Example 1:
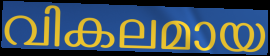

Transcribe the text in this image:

വികലമായ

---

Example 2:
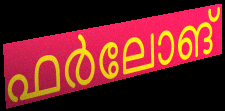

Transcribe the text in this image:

ഫർലോങ്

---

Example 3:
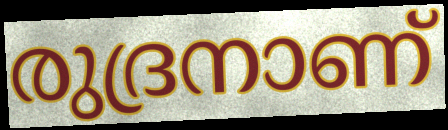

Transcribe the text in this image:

രുദ്രനാണ്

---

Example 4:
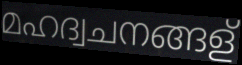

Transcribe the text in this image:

മഹദ്വചനങ്ങള്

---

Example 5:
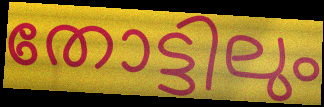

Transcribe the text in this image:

തോട്ടിലും